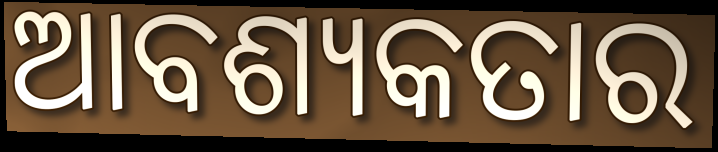
ଆବଶ୍ୟକତାର